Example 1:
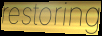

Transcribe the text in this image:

restoring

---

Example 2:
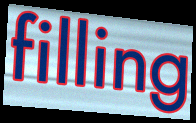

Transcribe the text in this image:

filling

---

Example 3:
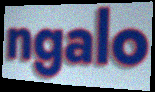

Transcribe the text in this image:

ngalo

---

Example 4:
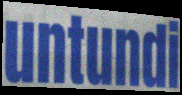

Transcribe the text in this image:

untundi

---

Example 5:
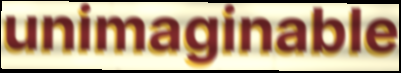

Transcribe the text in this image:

unimaginable